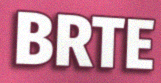
BRTE